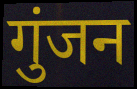
गुंजन